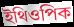
ইথিওপিক